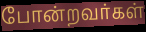
போன்றவர்கள்